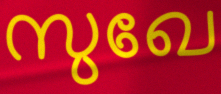
സുഖേ